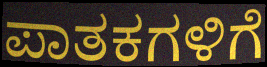
ಪಾತಕಗಳಿಗೆ